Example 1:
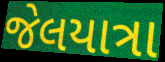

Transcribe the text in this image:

જેલયાત્રા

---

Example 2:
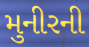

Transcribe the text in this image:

મુનીરની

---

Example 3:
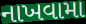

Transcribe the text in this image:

નાખવામા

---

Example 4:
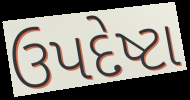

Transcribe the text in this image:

ઉપદેષ્ટા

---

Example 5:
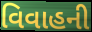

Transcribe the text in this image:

વિવાહની